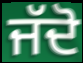
ਜੱਦੋ